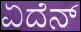
ಏದೆನ್